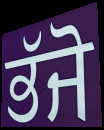
ਭੱਜੋ